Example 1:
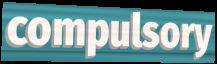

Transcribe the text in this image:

compulsory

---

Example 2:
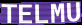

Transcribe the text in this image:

TELMU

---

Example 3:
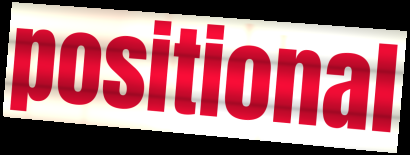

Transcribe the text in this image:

positional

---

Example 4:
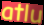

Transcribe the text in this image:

atlu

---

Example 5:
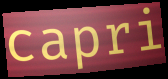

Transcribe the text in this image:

capri